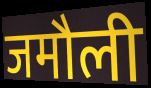
जमौली